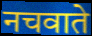
नचवाते